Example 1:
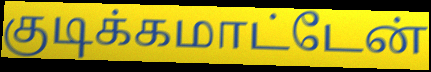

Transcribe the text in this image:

குடிக்கமாட்டேன்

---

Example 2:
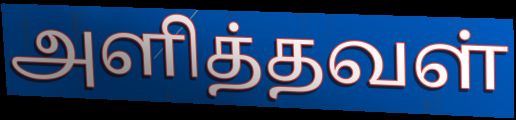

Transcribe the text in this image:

அளித்தவள்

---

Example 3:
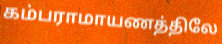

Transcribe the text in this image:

கம்பராமாயணத்திலே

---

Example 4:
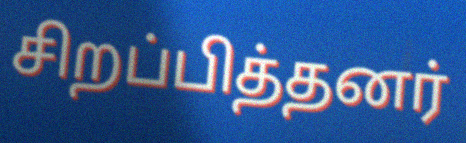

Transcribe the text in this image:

சிறப்பித்தனர்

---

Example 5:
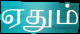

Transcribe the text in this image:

ஏதும்